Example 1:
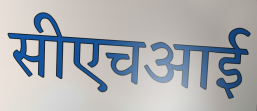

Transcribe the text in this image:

सीएचआई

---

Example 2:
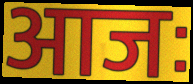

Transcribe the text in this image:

आजः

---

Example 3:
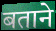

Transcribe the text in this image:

बताने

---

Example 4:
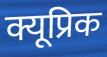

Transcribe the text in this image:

क्यूप्रिक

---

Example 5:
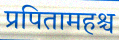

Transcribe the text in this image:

प्रपितामहश्च